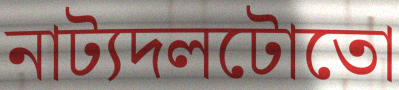
নাট্যদলটোতো